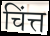
चिंत्त